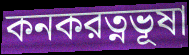
কনকরত্নভূষা